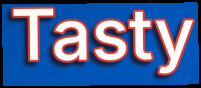
Tasty